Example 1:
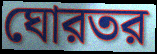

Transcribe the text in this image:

ঘোরতর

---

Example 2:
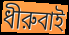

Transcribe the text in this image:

ধীরুবাই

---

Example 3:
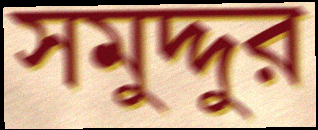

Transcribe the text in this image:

সমুদ্দুর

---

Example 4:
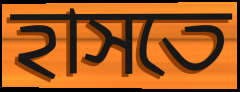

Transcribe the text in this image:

হাসতে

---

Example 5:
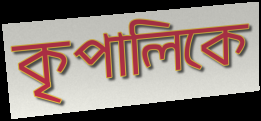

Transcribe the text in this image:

কৃপালিকে